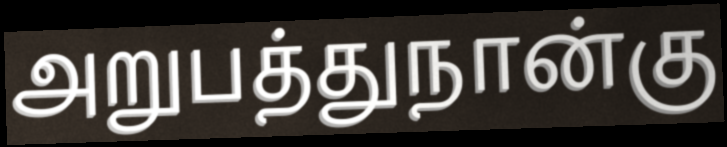
அறுபத்துநான்கு